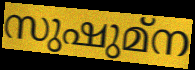
സുഷുമ്ന